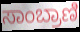
ಸಾಂಬ್ರಾಣಿ